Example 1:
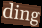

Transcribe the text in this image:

ding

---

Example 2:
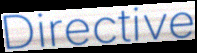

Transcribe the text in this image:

Directive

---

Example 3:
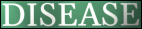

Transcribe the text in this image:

DISEASE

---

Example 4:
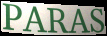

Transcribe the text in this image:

PARAS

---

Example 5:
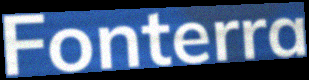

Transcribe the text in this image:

Fonterra